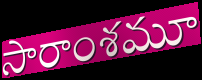
సారాంశమూ